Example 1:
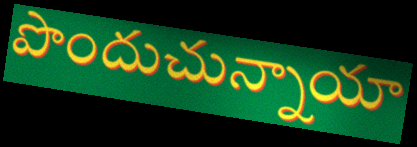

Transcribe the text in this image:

పొందుచున్నాయా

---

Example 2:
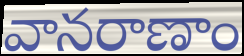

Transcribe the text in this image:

వానరాణాం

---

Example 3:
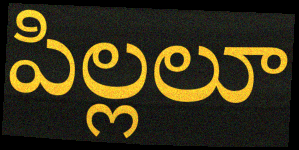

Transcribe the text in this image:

పిల్లలూ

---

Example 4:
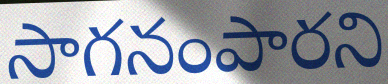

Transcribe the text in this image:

సాగనంపారని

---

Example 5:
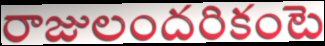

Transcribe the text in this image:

రాజులందరికంటె